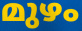
മുഴം